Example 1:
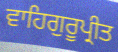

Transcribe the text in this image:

ਵਾਹਿਗੁਰੂਪ੍ਰੀਤ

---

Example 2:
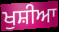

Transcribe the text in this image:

ਖੁਸ਼ੀਆ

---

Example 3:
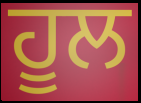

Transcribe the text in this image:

ਹੂਲ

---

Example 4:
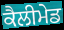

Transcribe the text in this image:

ਕੈਲੀਮੇਡ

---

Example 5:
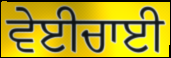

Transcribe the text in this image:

ਵੇਈਚਾਈ